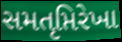
સમતૃપ્તિરેખા